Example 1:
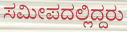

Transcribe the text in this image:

ಸಮೀಪದಲ್ಲಿದ್ದರು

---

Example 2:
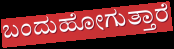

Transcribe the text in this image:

ಬಂದುಹೋಗುತ್ತಾರೆ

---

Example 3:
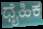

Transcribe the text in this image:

ಧೈಹಿಕ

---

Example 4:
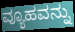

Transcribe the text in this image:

ವ್ಯೂಹವನ್ನು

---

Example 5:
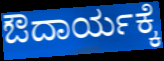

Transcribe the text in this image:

ಔದಾರ್ಯಕ್ಕೆ